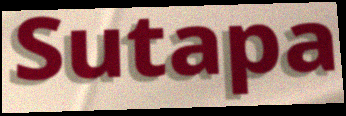
Sutapa